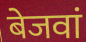
बेजवां